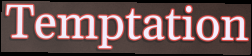
Temptation